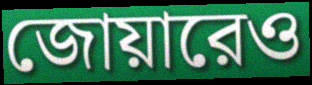
জোয়ারেও